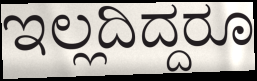
ಇಲ್ಲದಿದ್ದರೂ